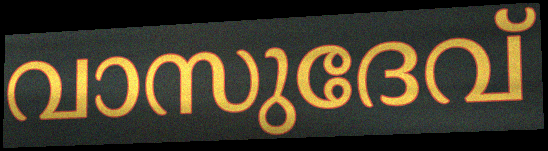
വാസുദേവ്